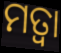
ମତ୍ୱା